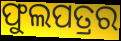
ଫୁଲପତ୍ରର